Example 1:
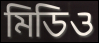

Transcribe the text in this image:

মিডিও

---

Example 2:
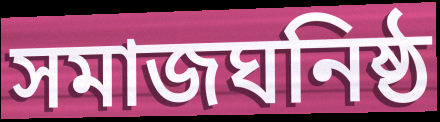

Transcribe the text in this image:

সমাজঘনিষ্ঠ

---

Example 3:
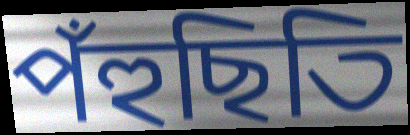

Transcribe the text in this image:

পঁহুছিতি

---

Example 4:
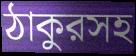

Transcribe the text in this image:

ঠাকুরসহ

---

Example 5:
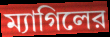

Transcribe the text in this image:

ম্যাগিলের